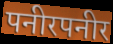
पनीरपनीर